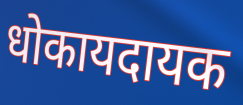
धोकायदायक